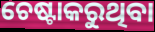
ଚେଷ୍ଟାକରୁଥିବା